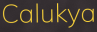
Calukya